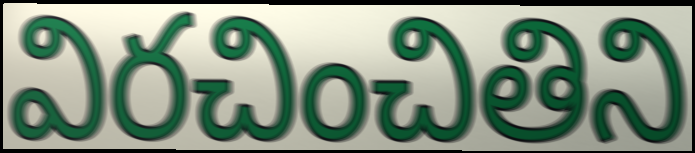
విరచించితిని